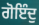
ਗੋਇੰਦੁ